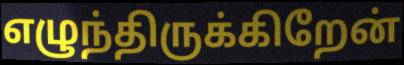
எழுந்திருக்கிறேன்